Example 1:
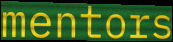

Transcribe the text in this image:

mentors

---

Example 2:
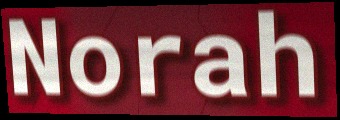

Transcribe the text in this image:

Norah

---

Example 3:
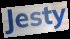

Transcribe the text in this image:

Jesty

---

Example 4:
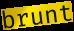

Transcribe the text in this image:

brunt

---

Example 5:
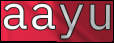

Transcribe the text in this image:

aayu